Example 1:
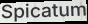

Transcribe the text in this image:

Spicatum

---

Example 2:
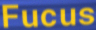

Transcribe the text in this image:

Fucus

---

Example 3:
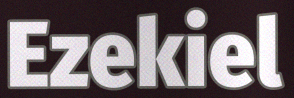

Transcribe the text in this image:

Ezekiel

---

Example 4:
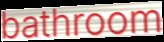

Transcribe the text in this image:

bathroom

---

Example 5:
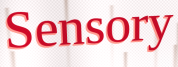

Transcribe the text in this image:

Sensory